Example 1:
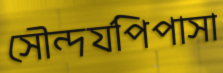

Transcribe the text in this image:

সৌন্দর্যপিপাসা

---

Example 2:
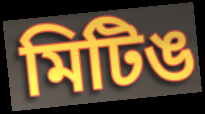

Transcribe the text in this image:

মিটিঙ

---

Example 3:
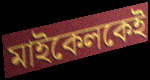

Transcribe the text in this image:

মাইকেলকেই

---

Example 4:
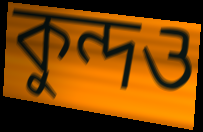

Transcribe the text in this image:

কুন্দও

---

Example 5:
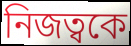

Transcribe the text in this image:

নিজত্বকে